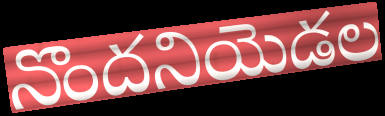
నొందనియెడల